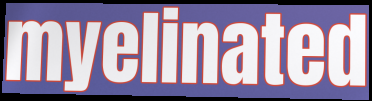
myelinated